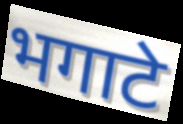
भगाटे